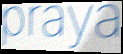
praya